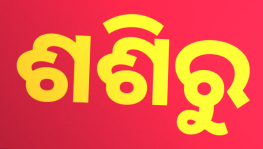
ଶଶିରୁ